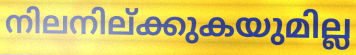
നിലനില്ക്കുകയുമില്ല